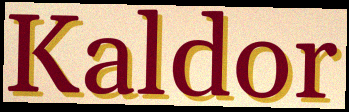
Kaldor